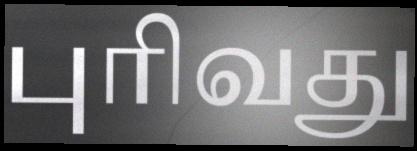
புரிவது